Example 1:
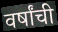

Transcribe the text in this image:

वर्षांची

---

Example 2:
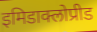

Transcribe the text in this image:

इमिडाक्लोप्रीड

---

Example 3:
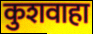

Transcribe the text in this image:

कुशवाहा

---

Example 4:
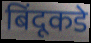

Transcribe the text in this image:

बिंदूकडे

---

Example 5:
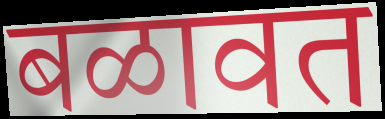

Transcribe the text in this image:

बळावत